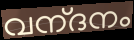
വന്‌ദനം